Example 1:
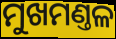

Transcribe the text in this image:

ମୁଖମଣ୍ତଳ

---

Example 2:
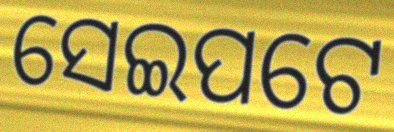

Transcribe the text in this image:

ସେଇପଟେ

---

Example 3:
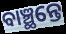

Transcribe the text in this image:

ବାଞ୍ଛନ୍ତେ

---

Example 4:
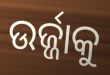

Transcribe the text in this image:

ଉର୍ଜ୍ଜାକୁ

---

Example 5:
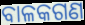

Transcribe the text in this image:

ବାଳକଗଣ